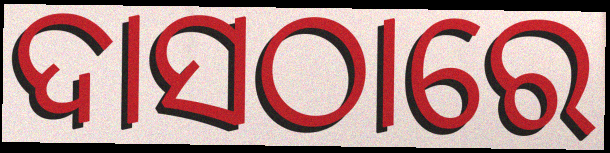
ଦାସଠାରେ